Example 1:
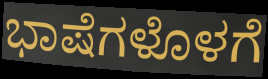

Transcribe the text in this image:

ಭಾಷೆಗಳೊಳಗೆ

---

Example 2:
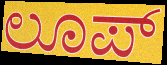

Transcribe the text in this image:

ಲೂಪ್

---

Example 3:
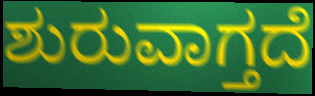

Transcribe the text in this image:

ಶುರುವಾಗ್ತದೆ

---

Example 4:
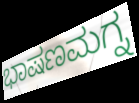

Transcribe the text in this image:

ಭಾಷಣಮಗ್ನ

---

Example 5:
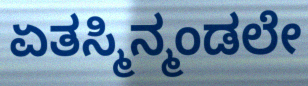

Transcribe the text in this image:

ಏತಸ್ಮಿನ್ಮಂಡಲೇ